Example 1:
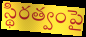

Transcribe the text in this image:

స్థిరత్వంపై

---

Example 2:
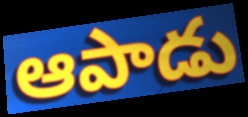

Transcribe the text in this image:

ఆపాడు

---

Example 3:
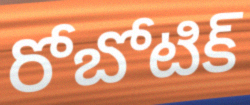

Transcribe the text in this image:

రోబోటిక్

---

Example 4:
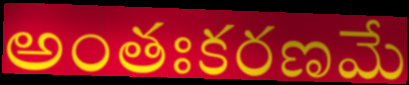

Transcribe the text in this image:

అంతఃకరణమే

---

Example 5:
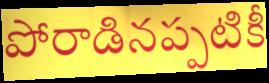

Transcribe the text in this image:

పోరాడినప్పటికీ